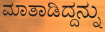
ಮಾತಾಡಿದ್ದನ್ನು